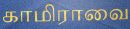
காமிராவை